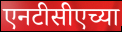
एनटीसीएच्या